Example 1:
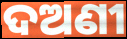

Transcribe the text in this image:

ଦଅଣୀ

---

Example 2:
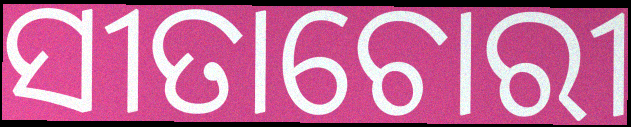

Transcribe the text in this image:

ସୀତାଚୋରୀ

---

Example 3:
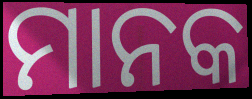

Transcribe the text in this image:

ମାନକ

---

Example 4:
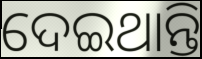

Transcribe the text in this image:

ଦେଇଥାନ୍ତି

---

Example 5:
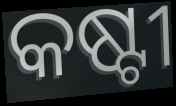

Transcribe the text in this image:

କଷ୍ଟୀ